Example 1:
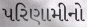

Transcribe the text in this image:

પરિણામીનો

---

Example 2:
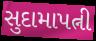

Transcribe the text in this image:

સુદામાપત્ની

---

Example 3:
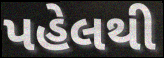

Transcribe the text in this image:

પહેલથી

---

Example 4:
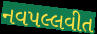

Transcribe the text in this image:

નવપલ્લવીત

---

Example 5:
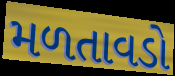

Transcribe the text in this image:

મળતાવડો